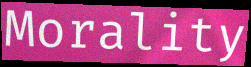
Morality